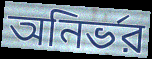
অনির্ভর